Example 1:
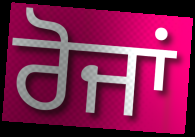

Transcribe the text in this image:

ਰੋਜਾਂ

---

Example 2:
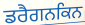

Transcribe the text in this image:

ਡਰੈਗਨਕਿਨ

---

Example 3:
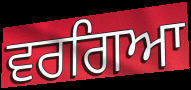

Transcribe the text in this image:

ਵਰਗਿਆ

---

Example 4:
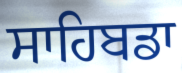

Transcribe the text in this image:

ਸਾਹਿਬਡਾ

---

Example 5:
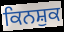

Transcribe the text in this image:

ਕਿਨਸ਼ੁਕ